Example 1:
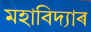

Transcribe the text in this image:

মহাবিদ্যাৰ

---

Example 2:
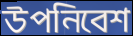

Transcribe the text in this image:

উপনিবেশ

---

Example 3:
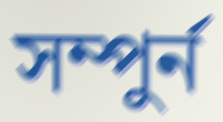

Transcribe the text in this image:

সম্পুৰ্ন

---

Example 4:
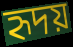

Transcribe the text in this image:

হৃদয়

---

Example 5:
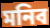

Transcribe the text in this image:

মনিব